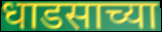
धाडसाच्या